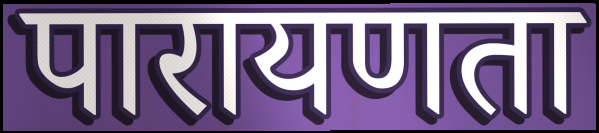
पारायणता